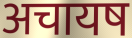
अचायष